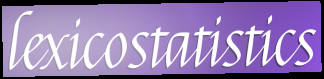
lexicostatistics